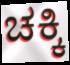
ಚಕ್ಕಿ